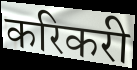
करिकरी